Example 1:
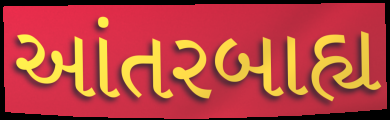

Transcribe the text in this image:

આંતરબાહ્ય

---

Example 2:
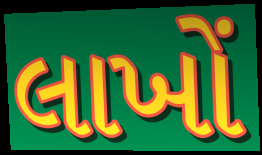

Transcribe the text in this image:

લાખોં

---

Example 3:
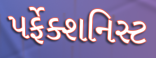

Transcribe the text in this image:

પર્ફેક્શનિસ્ટ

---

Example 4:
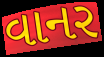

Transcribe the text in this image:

વાનર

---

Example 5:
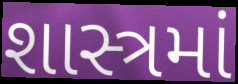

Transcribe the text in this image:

શાસ્ત્રમાં